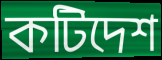
কটিদেশ